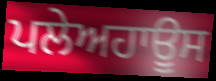
ਪਲੇਅਹਾਊਸ